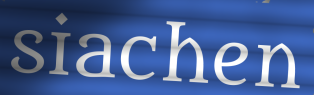
siachen